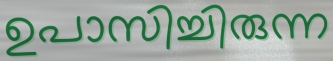
ഉപാസിച്ചിരുന്ന